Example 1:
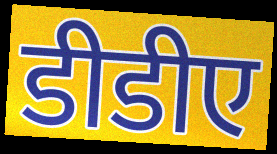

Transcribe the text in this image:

डीडीए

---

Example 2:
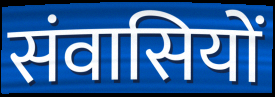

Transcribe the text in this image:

संवासियों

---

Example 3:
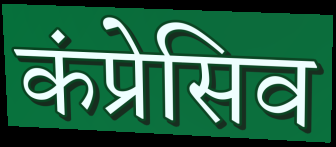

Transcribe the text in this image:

कंप्रेसिव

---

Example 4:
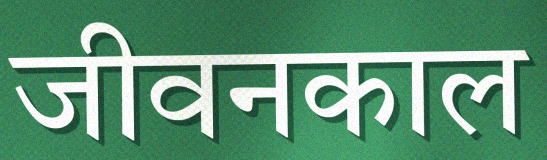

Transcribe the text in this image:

जीवनकाल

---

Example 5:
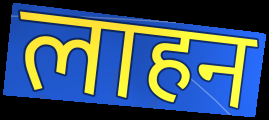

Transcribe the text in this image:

लाहन